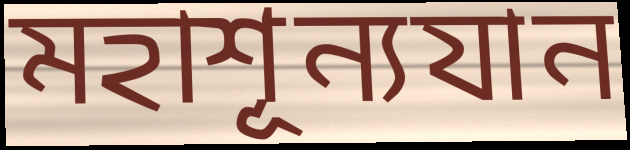
মহাশূন্যযান